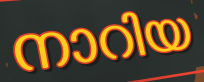
നാറിയ